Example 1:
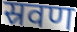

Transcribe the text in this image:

स्रवण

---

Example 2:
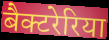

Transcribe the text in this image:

बैक्टरेरिया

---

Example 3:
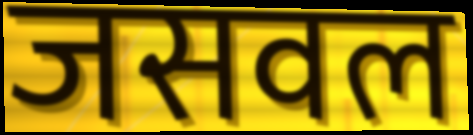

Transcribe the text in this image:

जसवल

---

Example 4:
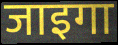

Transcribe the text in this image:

जाइगा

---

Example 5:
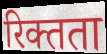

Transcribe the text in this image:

रिक्तता